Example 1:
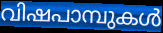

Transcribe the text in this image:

വിഷപാമ്പുകൾ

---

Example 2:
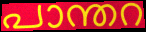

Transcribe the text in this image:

പാന്തറ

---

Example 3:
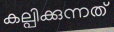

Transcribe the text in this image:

കല്പിക്കുന്നത്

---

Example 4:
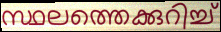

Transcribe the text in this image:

സ്ഥലത്തെക്കുറിച്ച്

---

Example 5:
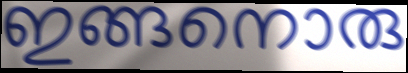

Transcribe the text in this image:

ഇങ്ങനൊരു